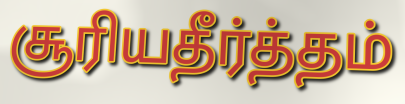
சூரியதீர்த்தம்